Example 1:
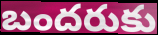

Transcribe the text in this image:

బందరుకు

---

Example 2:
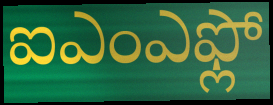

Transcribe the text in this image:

ఐఎంఎఫ్లో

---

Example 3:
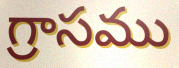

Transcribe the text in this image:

గ్రాసము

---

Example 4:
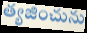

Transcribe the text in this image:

త్యజించును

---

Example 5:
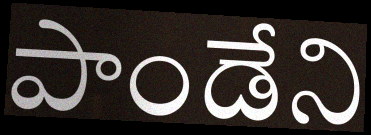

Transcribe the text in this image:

పాండేని